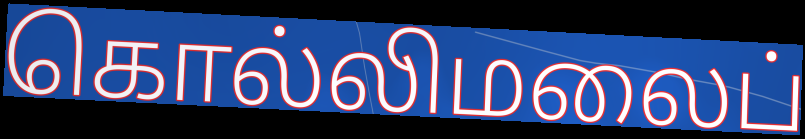
கொல்லிமலைப்